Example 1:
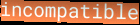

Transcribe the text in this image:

incompatible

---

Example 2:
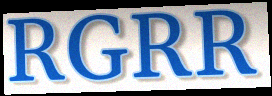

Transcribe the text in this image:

RGRR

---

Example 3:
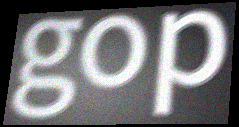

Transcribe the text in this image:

gop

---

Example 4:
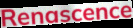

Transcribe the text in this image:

Renascence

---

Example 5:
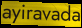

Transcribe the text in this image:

ayiravada